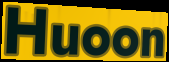
Huoon